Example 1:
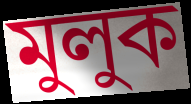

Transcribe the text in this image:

মুলুক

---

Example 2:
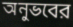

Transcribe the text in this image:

অনুভবের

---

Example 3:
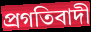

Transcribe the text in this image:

প্রগতিবাদী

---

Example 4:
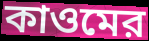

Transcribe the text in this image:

কাওমের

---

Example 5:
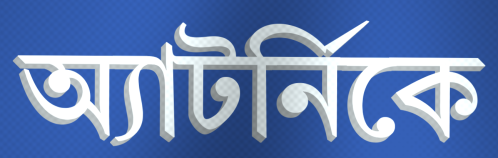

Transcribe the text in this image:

অ্যাটর্নিকে